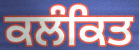
ਕਲੰਕਿਤ